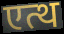
एत्थ